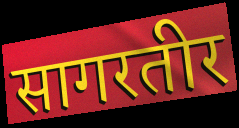
सागरतीर